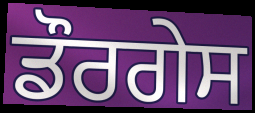
ਡੌਰਗੇਸ